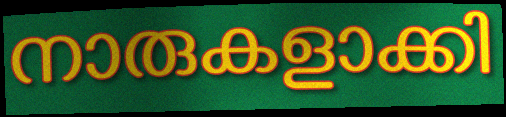
നാരുകളാക്കി